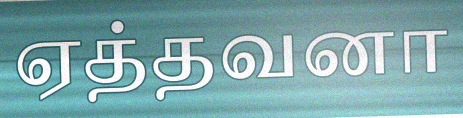
ஏத்தவனா